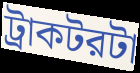
ট্রাকটরটা